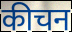
कीचन